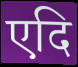
एदि